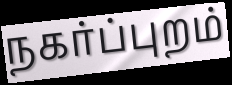
நகர்ப்புறம்